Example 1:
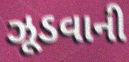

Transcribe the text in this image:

ઝૂડવાની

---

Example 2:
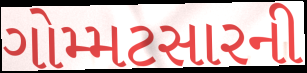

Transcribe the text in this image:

ગોમ્મટસારની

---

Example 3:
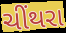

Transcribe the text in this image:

ચીંથરા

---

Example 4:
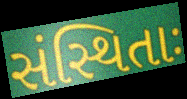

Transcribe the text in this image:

સંસ્થિતાઃ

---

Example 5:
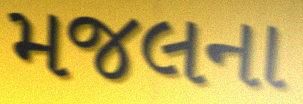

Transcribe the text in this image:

મજલના